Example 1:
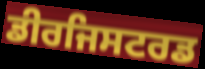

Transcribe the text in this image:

ਡੀਰਜਿਸਟਰਡ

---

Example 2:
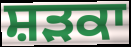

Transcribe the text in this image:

ਸ਼ੜਕਾ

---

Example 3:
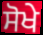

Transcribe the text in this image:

ਸੋਖੇ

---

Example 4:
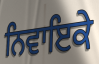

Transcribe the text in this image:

ਨਿਵਾਇਕੇ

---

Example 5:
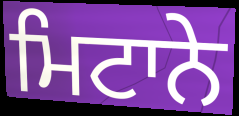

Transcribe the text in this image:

ਮਿਟਾਨੇ